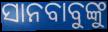
ସାନବାବୁଙ୍କୁ